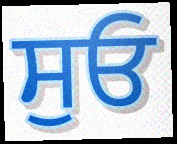
ਸੁਓ